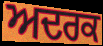
ਅਦਰਕ